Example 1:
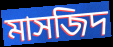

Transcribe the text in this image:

মাসজিদ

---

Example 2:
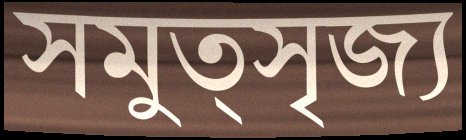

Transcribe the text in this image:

সমুত্সৃজ্য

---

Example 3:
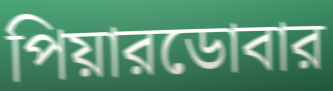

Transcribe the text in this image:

পিয়ারডোবার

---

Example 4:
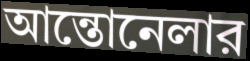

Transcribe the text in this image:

আন্তোনেলার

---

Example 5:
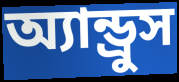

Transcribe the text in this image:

অ্যান্ড্রুস